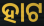
ହାଟ